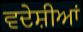
ਵਦੇਸ਼ੀਆਂ